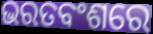
ଭରତବଂଶରେ